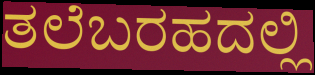
ತಲೆಬರಹದಲ್ಲಿ